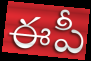
ఈపీ